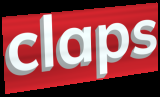
claps